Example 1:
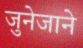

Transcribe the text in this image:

जुनेजाने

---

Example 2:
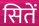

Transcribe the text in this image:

सितें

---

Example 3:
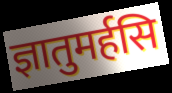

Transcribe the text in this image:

ज्ञातुमर्हसि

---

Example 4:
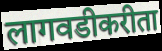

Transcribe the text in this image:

लागवडीकरीता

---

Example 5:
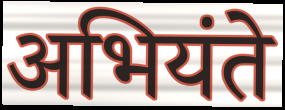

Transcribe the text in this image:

अभियंते